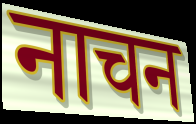
नाचन